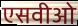
एसवीओ